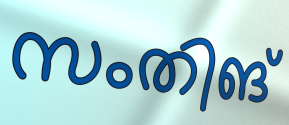
സംതിങ്